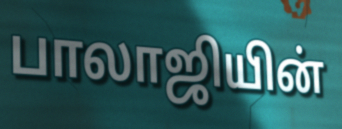
பாலாஜியின்